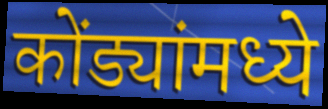
कोंड्यांमध्ये